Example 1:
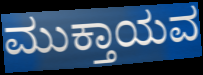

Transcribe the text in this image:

ಮುಕ್ತಾಯವ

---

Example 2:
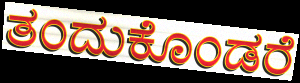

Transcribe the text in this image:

ತಂದುಕೊಂಡರೆ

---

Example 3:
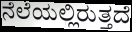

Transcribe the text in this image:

ನೆಲೆಯಲ್ಲಿರುತ್ತದೆ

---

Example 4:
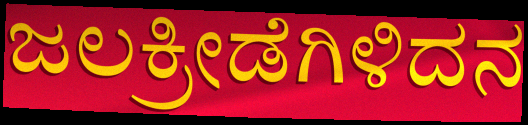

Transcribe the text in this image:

ಜಲಕ್ರೀಡೆಗಿಳಿದನ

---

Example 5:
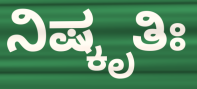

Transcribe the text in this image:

ನಿಷ್ಕೃತಿಃ